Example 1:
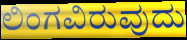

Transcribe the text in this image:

ಲಿಂಗವಿರುವುದು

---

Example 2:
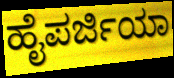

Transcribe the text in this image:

ಹೈಪರ್ಜಿಯಾ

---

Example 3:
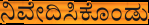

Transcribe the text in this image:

ನಿವೇದಿಸಿಕೊಂಡು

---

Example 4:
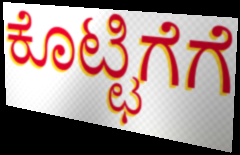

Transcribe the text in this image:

ಕೊಟ್ಟಿಗೆಗೆ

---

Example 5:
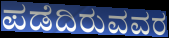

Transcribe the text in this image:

ಪಡೆದಿರುವವರ